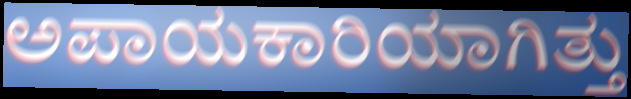
ಅಪಾಯಕಾರಿಯಾಗಿತ್ತು